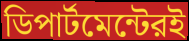
ডিপার্টমেন্টেরই